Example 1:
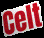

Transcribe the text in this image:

Celt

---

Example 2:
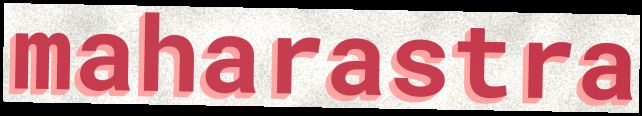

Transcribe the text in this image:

maharastra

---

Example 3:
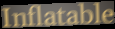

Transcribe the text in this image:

Inflatable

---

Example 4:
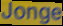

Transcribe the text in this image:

Jonge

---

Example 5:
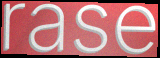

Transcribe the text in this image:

rase